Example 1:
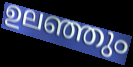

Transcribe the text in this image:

ഉലഞ്ഞും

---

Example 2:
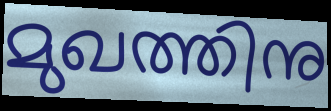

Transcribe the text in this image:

മുഖത്തിനു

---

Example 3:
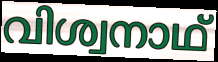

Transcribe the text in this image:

വിശ്വനാഥ്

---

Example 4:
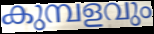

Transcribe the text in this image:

കുമ്പളവും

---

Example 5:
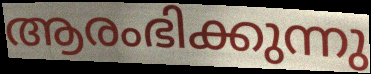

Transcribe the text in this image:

ആരംഭിക്കുന്നു